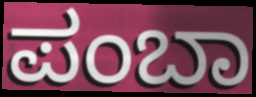
ಪಂಬಾ